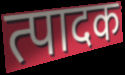
त्पादक